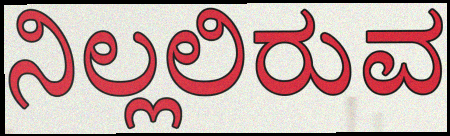
ನಿಲ್ಲಲಿರುವ